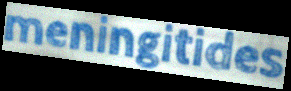
meningitides